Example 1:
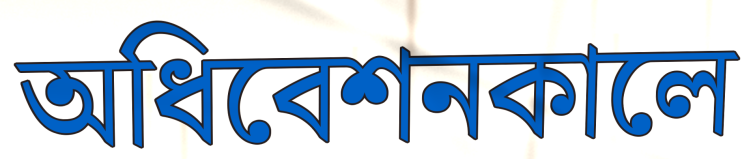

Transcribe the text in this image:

অধিবেশনকালে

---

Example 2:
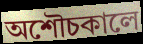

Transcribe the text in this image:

অশৌচকালে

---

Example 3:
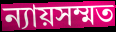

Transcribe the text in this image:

ন্যায়সম্মত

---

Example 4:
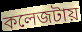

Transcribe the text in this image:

কলেজটায়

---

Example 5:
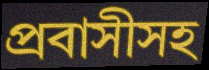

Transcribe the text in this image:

প্রবাসীসহ